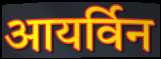
आयर्विन